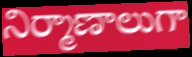
నిర్మాణాలుగా